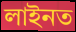
লাইনত